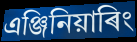
এঞ্জিনিয়াৰিং